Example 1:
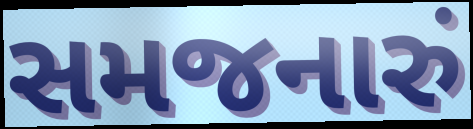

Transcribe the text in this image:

સમજનારું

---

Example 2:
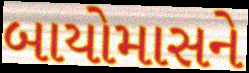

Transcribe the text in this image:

બાયોમાસને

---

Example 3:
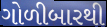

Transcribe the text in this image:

ગોળીબારથી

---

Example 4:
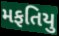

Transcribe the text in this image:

મફતિયુ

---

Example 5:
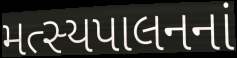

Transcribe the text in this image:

મત્સ્યપાલનનાં